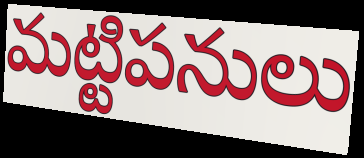
మట్టిపనులు